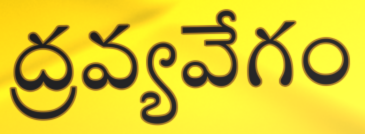
ద్రవ్యవేగం